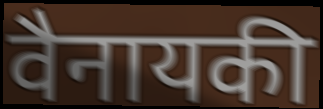
वैनायकी